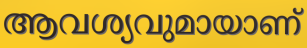
ആവശ്യവുമായാണ്